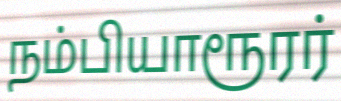
நம்பியாரூரர்